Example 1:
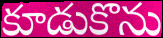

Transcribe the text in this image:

కూడుకొను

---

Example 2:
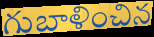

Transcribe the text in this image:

గుబాళించిన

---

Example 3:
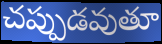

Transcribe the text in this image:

చప్పుడవుతూ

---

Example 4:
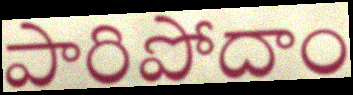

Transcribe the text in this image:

పారిపోదాం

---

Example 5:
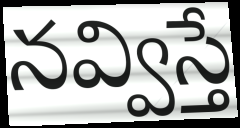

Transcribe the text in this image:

నవ్విస్తే